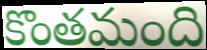
కొంతమంది